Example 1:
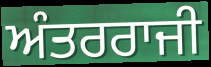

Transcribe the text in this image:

ਅੰਤਰਰਾਜੀ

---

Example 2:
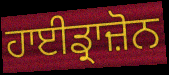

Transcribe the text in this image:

ਹਾਈਡ੍ਰਾਜ਼ੋਨ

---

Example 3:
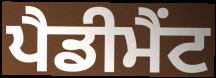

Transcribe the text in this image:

ਪੈਡੀਮੈਂਟ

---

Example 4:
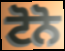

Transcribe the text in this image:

ਟੋਨੋ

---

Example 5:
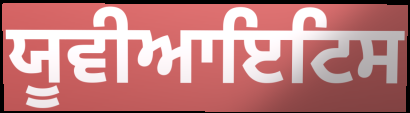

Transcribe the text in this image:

ਯੂਵੀਆਇਟਿਸ